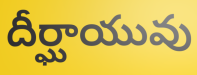
దీర్ఘాయువు